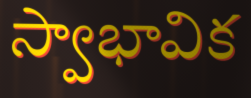
స్వాభావిక